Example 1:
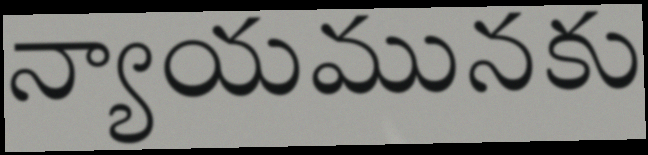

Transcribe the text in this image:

న్యాయమునకు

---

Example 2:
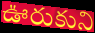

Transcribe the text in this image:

ఊరుకుని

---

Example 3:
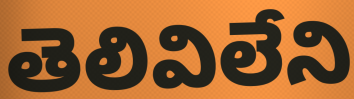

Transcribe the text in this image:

తెలివిలేని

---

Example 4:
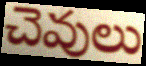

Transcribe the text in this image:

చెవులు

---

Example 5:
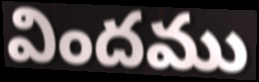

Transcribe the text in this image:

విందము